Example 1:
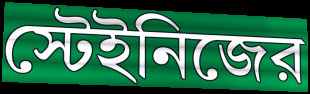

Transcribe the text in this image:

স্টেইনিজের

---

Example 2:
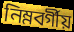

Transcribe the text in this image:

নিম্নবর্গীয়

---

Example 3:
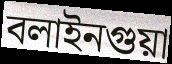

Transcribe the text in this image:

বলাইনগুয়া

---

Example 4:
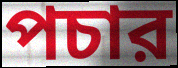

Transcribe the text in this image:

পচার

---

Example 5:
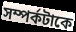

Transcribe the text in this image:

সম্পর্কটাকে